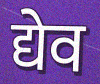
द्येव